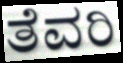
ತೆವರಿ